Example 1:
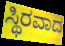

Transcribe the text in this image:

ಸ್ಥಿರವಾದ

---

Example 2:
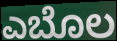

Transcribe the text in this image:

ಎಬೊಲ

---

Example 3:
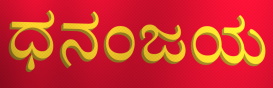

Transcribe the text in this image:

ಧನಂಜಯ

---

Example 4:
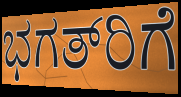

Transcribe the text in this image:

ಭಗತ್‍ರಿಗೆ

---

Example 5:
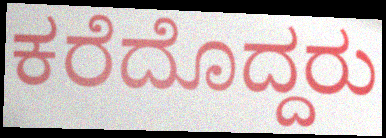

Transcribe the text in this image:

ಕರೆದೊದ್ದರು